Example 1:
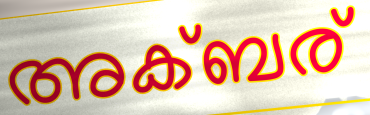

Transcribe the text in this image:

അക്ബര്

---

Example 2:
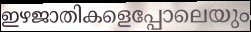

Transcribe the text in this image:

ഇഴജാതികളെപ്പോലെയും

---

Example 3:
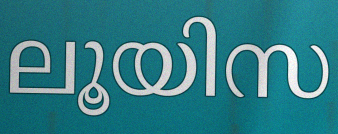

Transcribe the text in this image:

ലൂയിസ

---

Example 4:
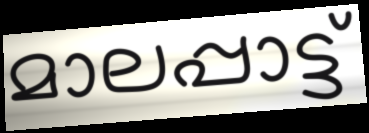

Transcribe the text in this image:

മാലപ്പാട്ട്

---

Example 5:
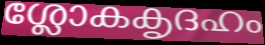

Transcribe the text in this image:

ശ്ലോകകൃദഹം